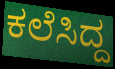
ಕಲೆಸಿದ್ದ